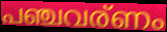
പഞ്ചവര്ണം